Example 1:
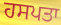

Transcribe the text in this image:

ਹਸਪਤਾ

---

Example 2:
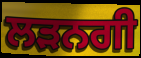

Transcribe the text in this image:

ਲੜਨਗੀ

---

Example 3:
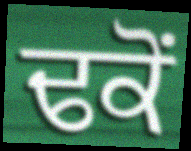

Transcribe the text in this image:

ਢਕੋਂ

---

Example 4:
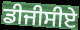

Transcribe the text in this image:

ਡੀਜੀਸੀਏ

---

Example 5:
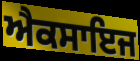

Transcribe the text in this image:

ਐਕਸਾਇਜ